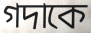
গদাকে